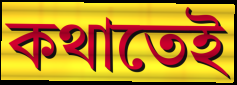
কথাতেই